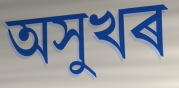
অসুখৰ